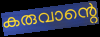
കരുവാന്റെ